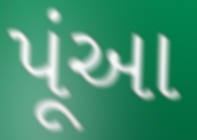
પૂંઆ